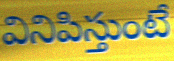
వినిపిస్తుంటే